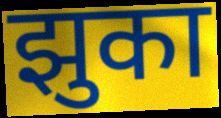
झुका